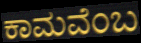
ಕಾಮವೆಂಬ